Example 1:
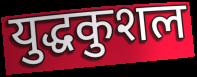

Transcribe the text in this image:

युद्धकुशल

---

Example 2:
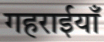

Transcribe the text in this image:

गहराईयाँ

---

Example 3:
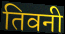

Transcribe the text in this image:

तिवनी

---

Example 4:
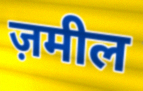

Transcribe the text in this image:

ज़मील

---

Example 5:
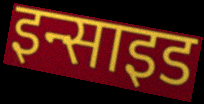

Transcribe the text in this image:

इन्साइड